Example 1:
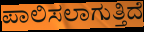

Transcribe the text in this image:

ಪಾಲಿಸಲಾಗುತ್ತಿದೆ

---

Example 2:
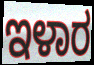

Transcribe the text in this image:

ಇಳಾರ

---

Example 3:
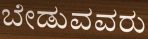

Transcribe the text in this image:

ಬೇಡುವವರು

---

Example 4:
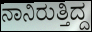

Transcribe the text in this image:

ನಾನಿರುತ್ತಿದ್ದ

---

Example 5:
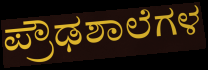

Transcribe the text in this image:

ಪ್ರೌಢಶಾಲೆಗಳ